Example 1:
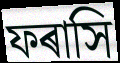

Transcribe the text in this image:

ফৰাসি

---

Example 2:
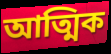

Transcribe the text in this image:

আত্মিক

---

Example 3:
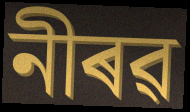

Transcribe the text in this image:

নীৰৱ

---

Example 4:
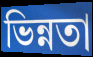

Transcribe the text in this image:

ভিন্নতা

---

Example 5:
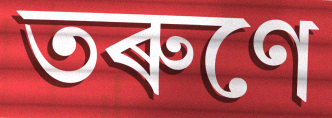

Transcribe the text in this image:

তৰুণে